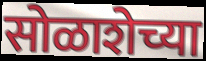
सोळाशेच्या